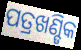
ପତ୍ରଖଣ୍ଡିକ